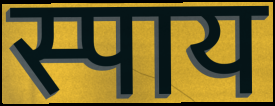
स्पाय